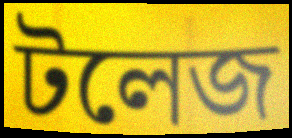
টলেজ